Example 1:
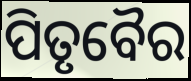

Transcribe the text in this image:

ପିତୃବୈର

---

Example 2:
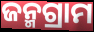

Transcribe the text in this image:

ଜନ୍ମଗ୍ରାମ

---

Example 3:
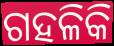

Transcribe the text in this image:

ଗହଳିକି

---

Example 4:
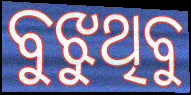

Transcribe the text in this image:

ବୁଝୁଥିବୁ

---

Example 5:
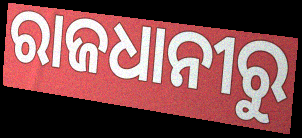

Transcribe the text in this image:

ରାଜଧାନୀରୁ